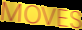
MOVES